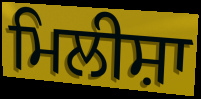
ਮਿਲੀਸ਼ਾ